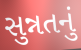
સુન્નતનું